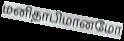
மனிதாபிமானமோ